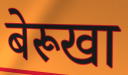
बेरूखा